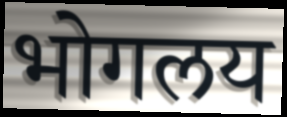
भोगलय